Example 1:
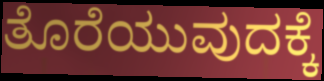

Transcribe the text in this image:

ತೊರೆಯುವುದಕ್ಕೆ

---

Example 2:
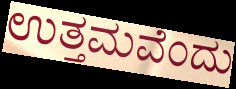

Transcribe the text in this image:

ಉತ್ತಮವೆಂದು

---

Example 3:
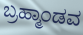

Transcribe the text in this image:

ಬ್ರಹ್ಮಾಂಡವ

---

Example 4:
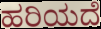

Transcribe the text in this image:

ಹರಿಯದೆ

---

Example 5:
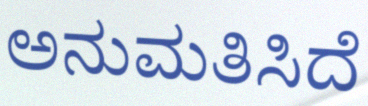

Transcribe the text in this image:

ಅನುಮತಿಸಿದೆ